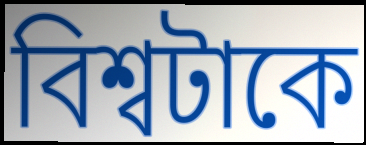
বিশ্বটাকে